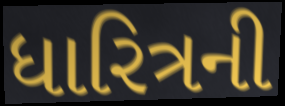
ધારિત્રની